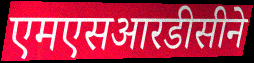
एमएसआरडीसीने